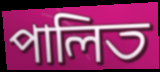
পালিত